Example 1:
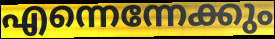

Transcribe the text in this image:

എന്നെന്നേക്കും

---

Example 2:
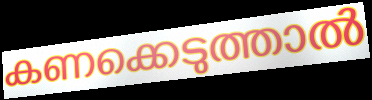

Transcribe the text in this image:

കണക്കെടുത്താൽ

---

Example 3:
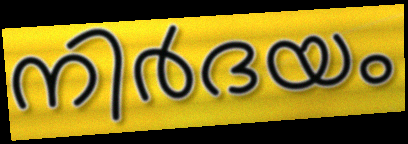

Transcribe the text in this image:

നിർദയം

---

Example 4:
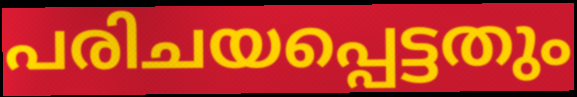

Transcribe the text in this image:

പരിചയപ്പെട്ടതും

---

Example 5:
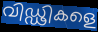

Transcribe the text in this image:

വിഡ്ഢികളെ